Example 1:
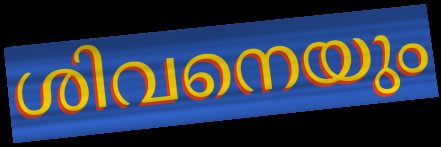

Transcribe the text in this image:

ശിവനെയും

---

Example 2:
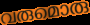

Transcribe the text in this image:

വരുമൊരു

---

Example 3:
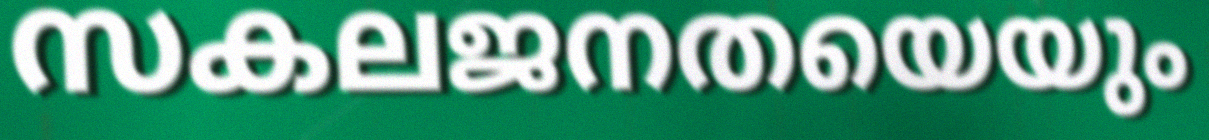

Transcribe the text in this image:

സകലജനതയെയും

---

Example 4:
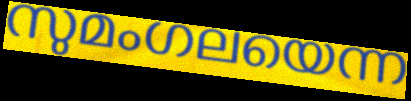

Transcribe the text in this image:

സുമംഗലയെന്ന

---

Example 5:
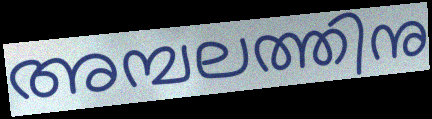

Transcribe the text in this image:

അമ്പലത്തിനു